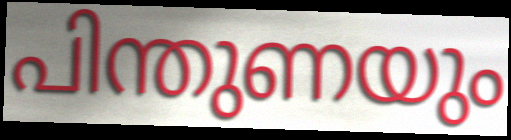
പിന്തുണയും